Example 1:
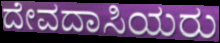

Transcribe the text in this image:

ದೇವದಾಸಿಯರು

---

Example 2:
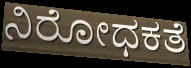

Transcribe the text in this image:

ನಿರೋಧಕತೆ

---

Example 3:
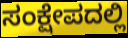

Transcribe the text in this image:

ಸಂಕ್ಷೇಪದಲ್ಲಿ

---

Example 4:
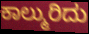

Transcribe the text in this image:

ಕಾಲ್ಮುರಿದು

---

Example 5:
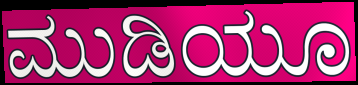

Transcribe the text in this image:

ಮುಡಿಯೂ